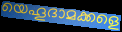
യെഹൂദാമക്കളെ